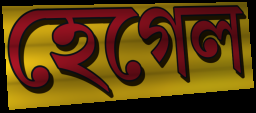
হেগেল